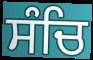
ਸੰਚਿ